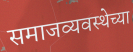
समाजव्यवस्थेच्या